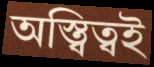
অস্ত্বিত্বই